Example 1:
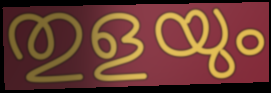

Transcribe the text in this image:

തുളയും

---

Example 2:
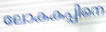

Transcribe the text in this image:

ലോകകപ്പിനെ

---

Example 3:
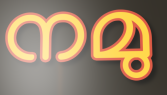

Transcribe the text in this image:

നമു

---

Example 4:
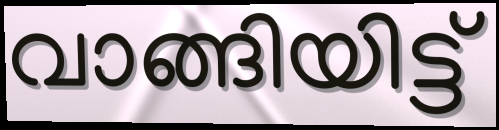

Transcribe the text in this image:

വാങ്ങിയിട്ട്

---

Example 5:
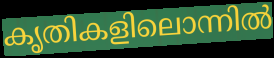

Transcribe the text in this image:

കൃതികളിലൊന്നിൽ